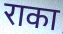
राका